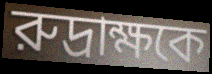
রুদ্রাক্ষকে